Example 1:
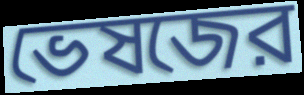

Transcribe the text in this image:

ভেষজের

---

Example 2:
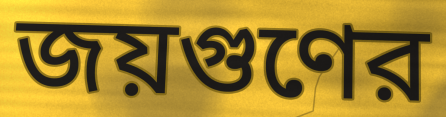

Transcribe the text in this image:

জয়গুণের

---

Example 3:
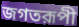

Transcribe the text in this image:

জগতরূপী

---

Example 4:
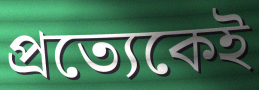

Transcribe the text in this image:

প্রত্যেকেই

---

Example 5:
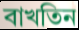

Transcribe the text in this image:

বাখতিন